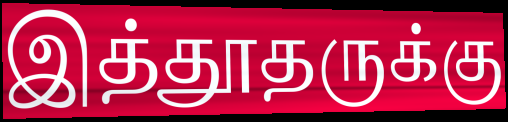
இத்தூதருக்கு